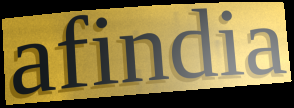
afindia